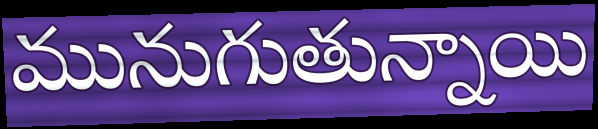
మునుగుతున్నాయి